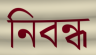
নিবন্ধ